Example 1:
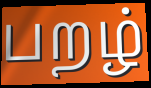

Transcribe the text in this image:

பறழ்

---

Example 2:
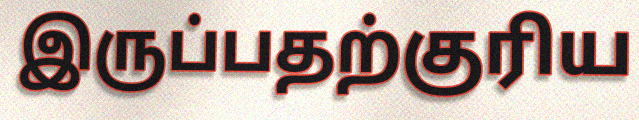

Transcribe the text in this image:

இருப்பதற்குரிய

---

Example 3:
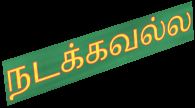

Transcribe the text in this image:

நடக்கவல்ல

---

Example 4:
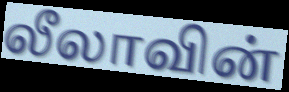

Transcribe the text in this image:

லீலாவின்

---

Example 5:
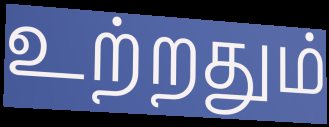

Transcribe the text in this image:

உற்றதும்